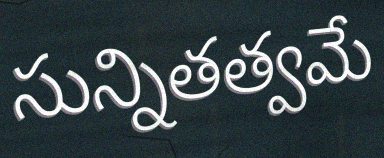
సున్నితత్వమే